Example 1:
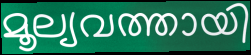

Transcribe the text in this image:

മൂല്യവത്തായി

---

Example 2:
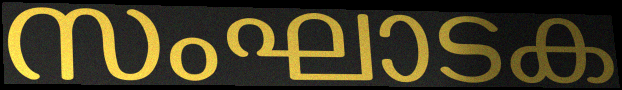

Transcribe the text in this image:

സംഘാടക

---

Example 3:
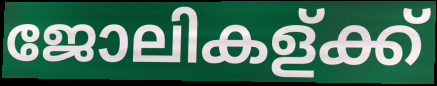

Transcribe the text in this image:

ജോലികള്ക്ക്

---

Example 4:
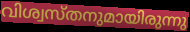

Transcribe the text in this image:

വിശ്വസ്തനുമായിരുന്നു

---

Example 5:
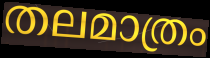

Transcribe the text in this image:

തലമാത്രം